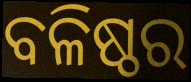
ବଳିଷ୍ଠର